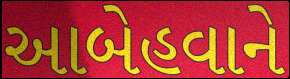
આબેહવાને